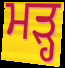
ਮੜ੍ਹ